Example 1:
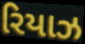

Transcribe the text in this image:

રિયાઝ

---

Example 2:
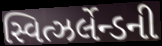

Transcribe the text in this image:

સ્વિત્ઝર્લેન્ડની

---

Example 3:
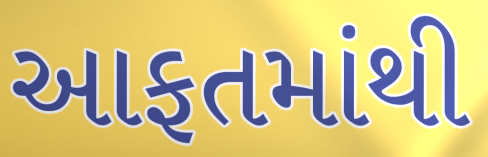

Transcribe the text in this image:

આફતમાંથી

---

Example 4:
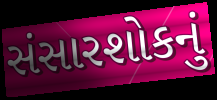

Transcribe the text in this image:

સંસારશોકનું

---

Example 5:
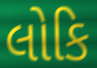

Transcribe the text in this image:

લોકિ